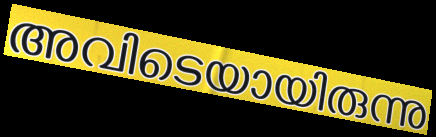
അവിടെയായിരുന്നു